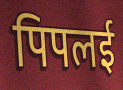
पिपलई